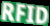
RFID